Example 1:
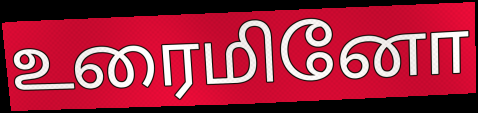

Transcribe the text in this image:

உரைமினோ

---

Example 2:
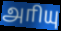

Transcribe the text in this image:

அரியு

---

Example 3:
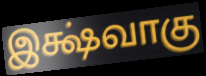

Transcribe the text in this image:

இக்ஷ்வாகு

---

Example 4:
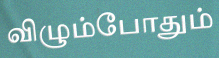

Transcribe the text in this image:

விழும்போதும்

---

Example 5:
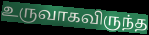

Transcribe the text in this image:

உருவாகவிருந்த